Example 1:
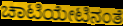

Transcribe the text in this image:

ಚಾಟಿಯೇಟಿನಂತೆ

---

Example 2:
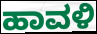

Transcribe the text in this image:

ಹಾವಳಿ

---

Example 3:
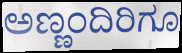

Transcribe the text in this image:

ಅಣ್ಣಂದಿರಿಗೂ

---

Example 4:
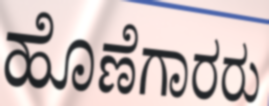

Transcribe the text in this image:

ಹೊಣೆಗಾರರು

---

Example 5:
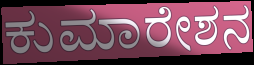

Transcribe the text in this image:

ಕುಮಾರೇಶನ